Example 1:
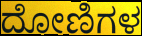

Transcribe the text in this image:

ದೋಣಿಗಳ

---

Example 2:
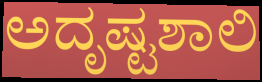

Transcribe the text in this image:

ಅದೃಷ್ಟಶಾಲಿ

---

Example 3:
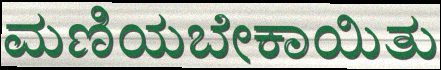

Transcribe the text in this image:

ಮಣಿಯಬೇಕಾಯಿತು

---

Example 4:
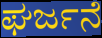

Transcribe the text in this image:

ಘರ್ಜನೆ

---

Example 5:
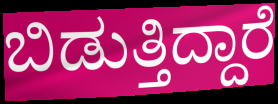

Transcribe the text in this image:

ಬಿಡುತ್ತಿದ್ದಾರೆ